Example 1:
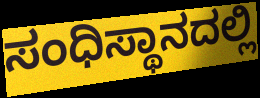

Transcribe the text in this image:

ಸಂಧಿಸ್ಥಾನದಲ್ಲಿ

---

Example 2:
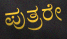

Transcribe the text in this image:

ಪುತ್ರರೇ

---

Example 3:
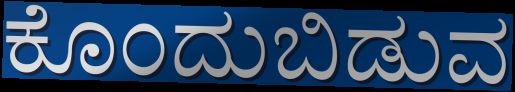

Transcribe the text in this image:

ಕೊಂದುಬಿಡುವ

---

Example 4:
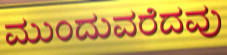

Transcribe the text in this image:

ಮುಂದುವರೆದವು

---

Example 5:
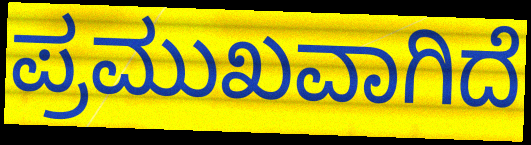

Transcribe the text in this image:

ಪ್ರಮುಖವಾಗಿದೆ